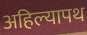
अहिल्यापथ